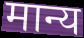
मान्य